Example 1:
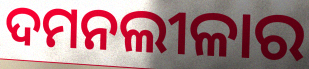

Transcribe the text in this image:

ଦମନଲୀଳାର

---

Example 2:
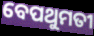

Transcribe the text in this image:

ବେପଥୁମତୀ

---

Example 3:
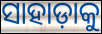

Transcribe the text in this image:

ସାହାଡ଼ାକୁ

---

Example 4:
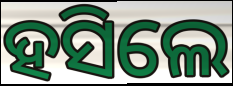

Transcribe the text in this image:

ହସିଲେ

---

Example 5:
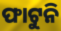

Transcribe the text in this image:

ଫାଟୁନି